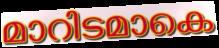
മാറിടമാകെ